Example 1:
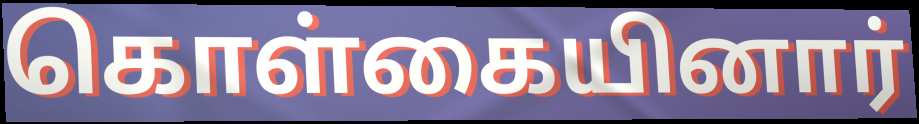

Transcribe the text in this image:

கொள்கையினார்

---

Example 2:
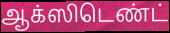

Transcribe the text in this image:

ஆக்ஸிடெண்ட்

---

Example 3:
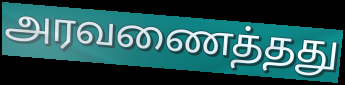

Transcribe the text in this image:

அரவணைத்தது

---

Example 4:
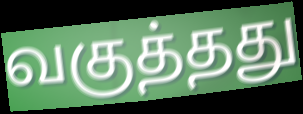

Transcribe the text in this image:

வகுத்தது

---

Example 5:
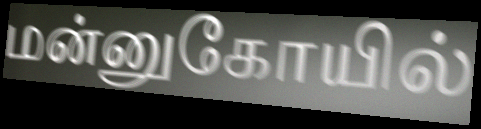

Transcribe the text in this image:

மன்னுகோயில்